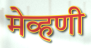
मेव्हणी